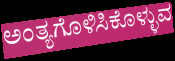
ಅಂತ್ಯಗೊಳಿಸಿಕೊಳ್ಳುವ